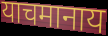
याचमानाय